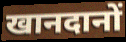
खानदानों